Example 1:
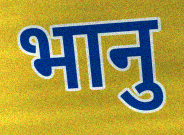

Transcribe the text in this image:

भानु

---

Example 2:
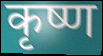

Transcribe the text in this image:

कृष्ण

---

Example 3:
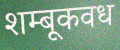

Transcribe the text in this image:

शम्बूकवध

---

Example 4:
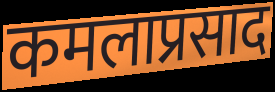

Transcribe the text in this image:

कमलाप्रसाद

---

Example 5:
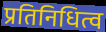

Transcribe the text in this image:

प्रतिनिधित्व